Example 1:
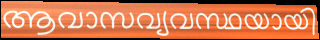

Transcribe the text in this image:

ആവാസവ്യവസ്ഥയായി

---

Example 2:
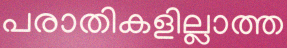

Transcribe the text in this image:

പരാതികളില്ലാത്ത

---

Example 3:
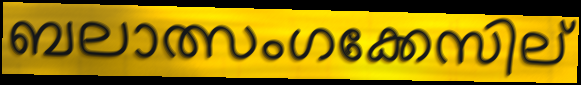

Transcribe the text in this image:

ബലാത്സംഗക്കേസില്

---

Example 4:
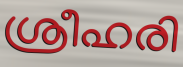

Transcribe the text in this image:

ശ്രീഹരി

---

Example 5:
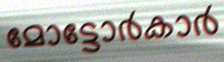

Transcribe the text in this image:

മോട്ടോർകാർ